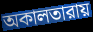
অকালতারায়